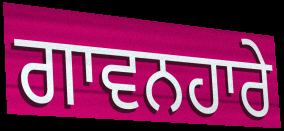
ਗਾਵਨਹਾਰੇ